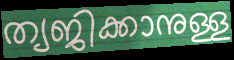
ത്യജിക്കാനുള്ള